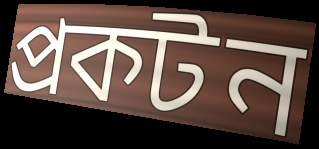
প্রকটন